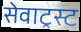
सेवाट्रस्ट